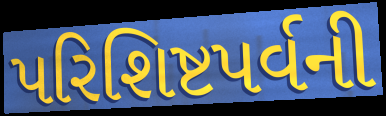
પરિશિષ્ટપર્વની